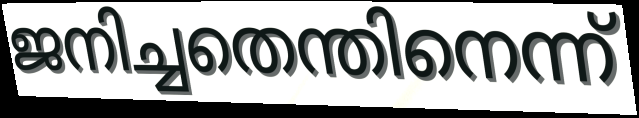
ജനിച്ചതെന്തിനെന്ന്